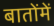
बातोंमें